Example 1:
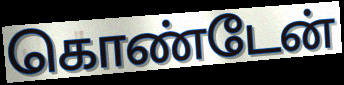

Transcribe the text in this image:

கொண்டேன்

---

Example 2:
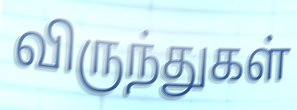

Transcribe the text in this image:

விருந்துகள்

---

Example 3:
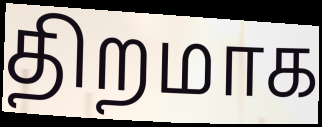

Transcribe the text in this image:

திறமாக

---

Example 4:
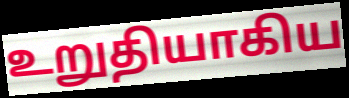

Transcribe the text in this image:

உறுதியாகிய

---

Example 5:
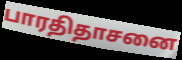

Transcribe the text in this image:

பாரதிதாசனை